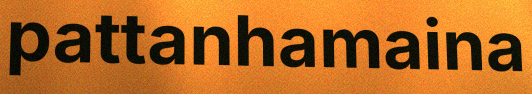
pattanhamaina